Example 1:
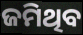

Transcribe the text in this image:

ଜମିଥିବ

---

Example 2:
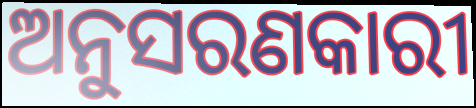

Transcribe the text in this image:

ଅନୁସରଣକାରୀ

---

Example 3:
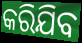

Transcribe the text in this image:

କରିଯିବ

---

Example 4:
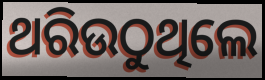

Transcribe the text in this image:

ଥରିଉଠୁଥିଲେ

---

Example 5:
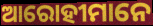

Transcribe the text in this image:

ଆରୋହୀମାନେ